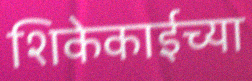
शिकेकाईच्या